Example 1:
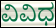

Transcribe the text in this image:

ವಿವಿಧ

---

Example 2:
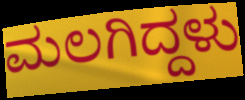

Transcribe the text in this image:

ಮಲಗಿದ್ದಳು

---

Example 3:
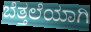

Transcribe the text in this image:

ಬೆತ್ತಲೆಯಾಗಿ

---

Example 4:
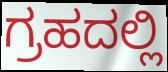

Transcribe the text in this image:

ಗ್ರಹದಲ್ಲಿ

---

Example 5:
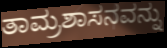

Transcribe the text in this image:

ತಾಮ್ರಶಾಸನವನ್ನು